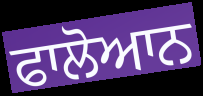
ਫਾਲੋਆਨ